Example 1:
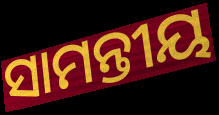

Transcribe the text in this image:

ସାମନ୍ତୀୟ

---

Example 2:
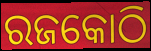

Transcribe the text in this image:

ରଜକୋଠି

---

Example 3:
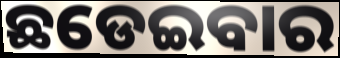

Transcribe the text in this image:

ଛଡେଇବାର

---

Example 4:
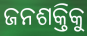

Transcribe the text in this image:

ଜନଶକ୍ତିକୁ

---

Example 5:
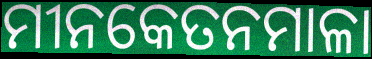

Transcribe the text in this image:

ମୀନକେତନମାଳା